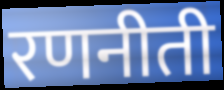
रणनीती